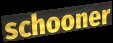
schooner